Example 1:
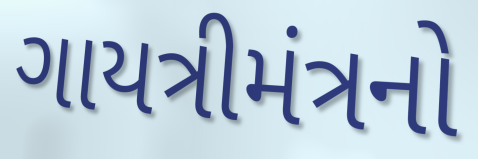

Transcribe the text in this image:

ગાયત્રીમંત્રનો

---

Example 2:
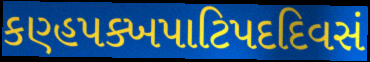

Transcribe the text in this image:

કણ્હપક્ખપાટિપદદિવસં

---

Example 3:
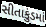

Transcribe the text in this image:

સીતાકુંડમાં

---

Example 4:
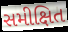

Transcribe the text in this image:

સમીક્ષિત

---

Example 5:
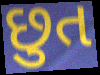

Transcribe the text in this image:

છુત